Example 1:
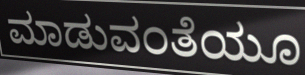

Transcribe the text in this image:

ಮಾಡುವಂತೆಯೂ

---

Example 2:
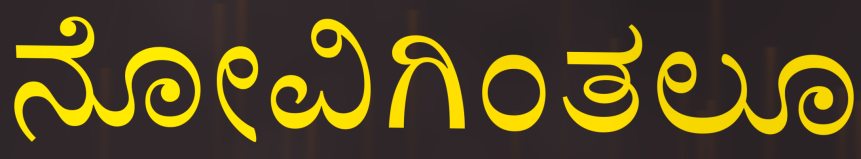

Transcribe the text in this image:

ನೋವಿಗಿಂತಲೂ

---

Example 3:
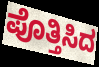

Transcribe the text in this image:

ಪೊತ್ತಿಸಿದ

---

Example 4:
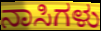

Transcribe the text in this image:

ನಾಸಿಗಳು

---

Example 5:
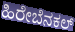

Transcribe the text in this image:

ಹಿರೇಬೆನಕಲ್